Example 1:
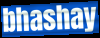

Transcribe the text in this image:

bhashay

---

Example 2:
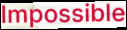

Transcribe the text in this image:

Impossible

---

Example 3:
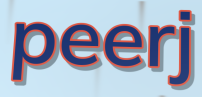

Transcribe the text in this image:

peerj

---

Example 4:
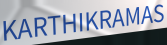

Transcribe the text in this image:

KARTHIKRAMAS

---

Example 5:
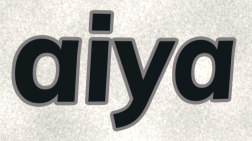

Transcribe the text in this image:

aiya